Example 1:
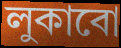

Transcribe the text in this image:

লুকাবো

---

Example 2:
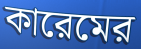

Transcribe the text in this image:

কারেমের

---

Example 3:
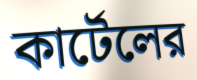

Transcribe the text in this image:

কার্টেলের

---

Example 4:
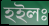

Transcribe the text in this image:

হইলঃ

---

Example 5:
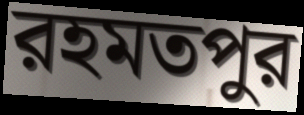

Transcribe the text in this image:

রহমতপুর